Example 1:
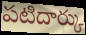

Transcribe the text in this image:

పటిదార్కు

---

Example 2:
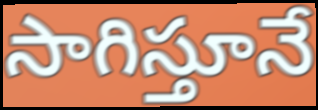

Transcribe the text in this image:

సాగిస్తూనే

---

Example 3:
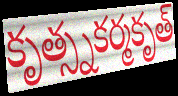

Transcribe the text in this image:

కృత్స్నకర్మకృత్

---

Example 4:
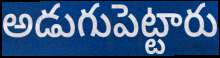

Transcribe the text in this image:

అడుగుపెట్టారు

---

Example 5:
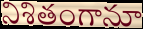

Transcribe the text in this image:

నిశితంగానూ